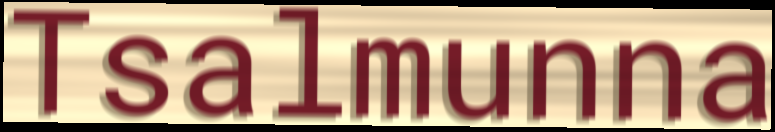
Tsalmunna